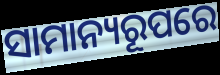
ସାମାନ୍ୟରୂପରେ